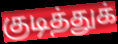
குடித்துக்